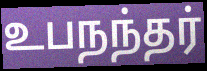
உபநந்தர்